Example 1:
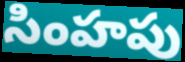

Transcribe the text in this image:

సింహపు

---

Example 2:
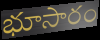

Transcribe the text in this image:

భూసారం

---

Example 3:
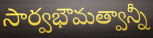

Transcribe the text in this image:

సార్వభౌమత్వాన్నీ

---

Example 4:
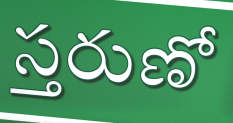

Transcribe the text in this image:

స్తరుణో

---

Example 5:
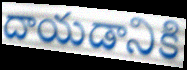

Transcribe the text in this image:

దాయడానికి